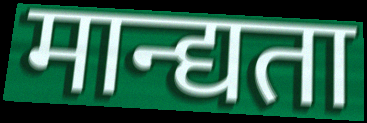
मान्द्यता